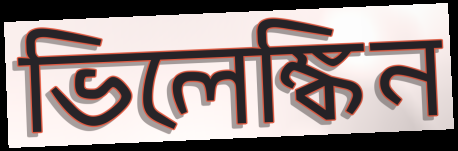
ভিলেঙ্কিন